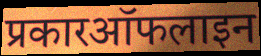
प्रकारऑफलाइन